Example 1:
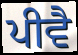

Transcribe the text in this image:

ਪੀਵੈ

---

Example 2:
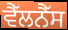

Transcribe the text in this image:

ਵੈੱਲਨੈੱਸ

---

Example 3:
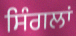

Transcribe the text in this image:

ਸਿੰਗਲਾਂ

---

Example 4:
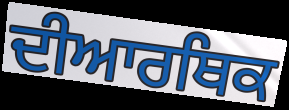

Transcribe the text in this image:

ਦੀਆਰਥਿਕ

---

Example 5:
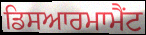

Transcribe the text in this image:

ਡਿਸਆਰਮਾਮੈਂਟ